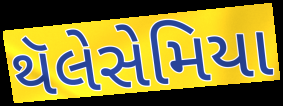
થૅલેસેમિયા